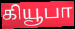
கியூபா